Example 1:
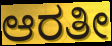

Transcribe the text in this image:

ಆರತೀ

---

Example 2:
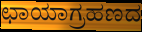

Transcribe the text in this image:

ಛಾಯಾಗ್ರಹಣದ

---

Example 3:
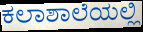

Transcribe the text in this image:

ಕಲಾಶಾಲೆಯಲ್ಲಿ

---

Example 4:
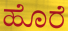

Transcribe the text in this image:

ಹೊರೆ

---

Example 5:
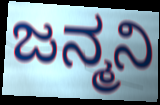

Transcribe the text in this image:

ಜನ್ಮನಿ